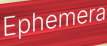
Ephemera